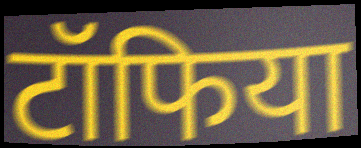
टॉफिया